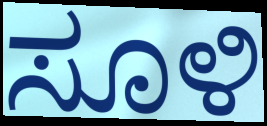
ಸೂಳಿ